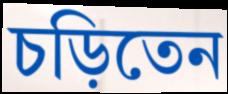
চড়িতেন